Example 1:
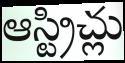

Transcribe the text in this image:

ఆస్ట్రిచ్లు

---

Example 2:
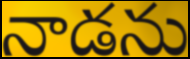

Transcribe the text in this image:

నాడను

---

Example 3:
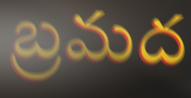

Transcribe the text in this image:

బ్రమద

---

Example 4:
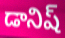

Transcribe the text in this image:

డానిష్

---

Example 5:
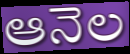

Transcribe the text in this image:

ఆనెల